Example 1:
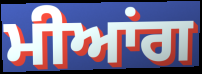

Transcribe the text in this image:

ਮੀਆਂਗ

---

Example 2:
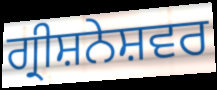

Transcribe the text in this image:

ਗ੍ਰੀਸ਼ਨੇਸ਼ਵਰ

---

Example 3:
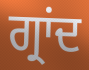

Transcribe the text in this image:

ਗ੍ਰਾਂਦ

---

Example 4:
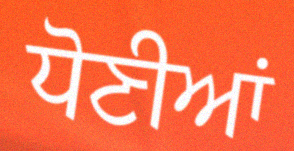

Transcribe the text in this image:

ਧੋਣੀਆਂ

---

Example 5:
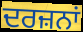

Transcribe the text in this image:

ਦਰਜ਼ਨਾਂ